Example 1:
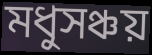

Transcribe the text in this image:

মধুসঞ্চয়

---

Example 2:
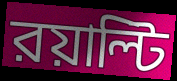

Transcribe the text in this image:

রয়াল্টি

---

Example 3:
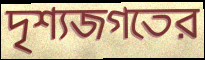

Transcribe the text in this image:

দৃশ্যজগতের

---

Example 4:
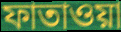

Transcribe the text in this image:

ফাতাওয়া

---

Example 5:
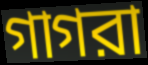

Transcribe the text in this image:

গাগরা